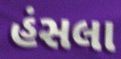
હંસલા